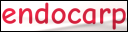
endocarp